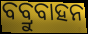
ବବ୍ରୁବାହନ